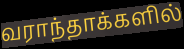
வராந்தாக்களில்